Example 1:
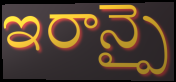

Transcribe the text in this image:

ఇరాన్పై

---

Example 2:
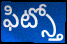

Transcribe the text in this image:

ఫిట్స్తో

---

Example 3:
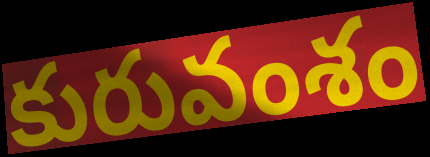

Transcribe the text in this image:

కురువంశం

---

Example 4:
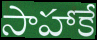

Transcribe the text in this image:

సాహాకే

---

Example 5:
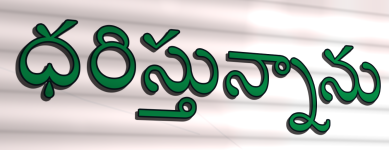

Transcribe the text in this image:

ధరిస్తున్నాను